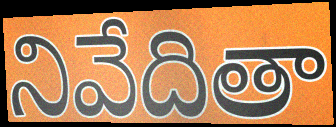
నివేదితా